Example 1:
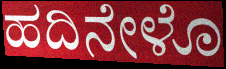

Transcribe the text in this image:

ಹದಿನೇಳೊ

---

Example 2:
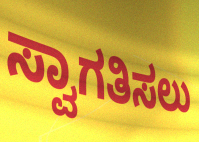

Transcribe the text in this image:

ಸ್ವಾಗತಿಸಲು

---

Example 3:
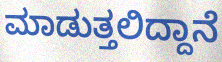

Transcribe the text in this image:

ಮಾಡುತ್ತಲಿದ್ದಾನೆ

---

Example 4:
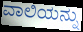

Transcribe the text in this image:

ವಾಲಿಯನ್ನು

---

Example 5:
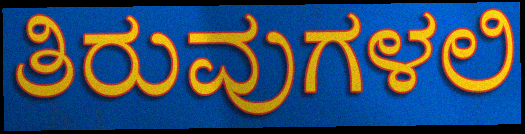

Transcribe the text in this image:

ತಿರುವುಗಳಲಿ